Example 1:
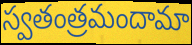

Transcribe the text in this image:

స్వతంత్రమందామా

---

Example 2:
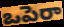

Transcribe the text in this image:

ఒపెరా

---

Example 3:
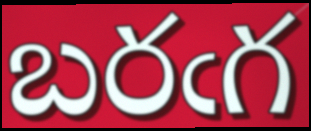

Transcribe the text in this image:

బరఁగ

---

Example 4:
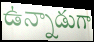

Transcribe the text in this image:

ఉన్నాడుగా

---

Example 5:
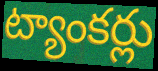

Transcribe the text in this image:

ట్యాంకర్లు